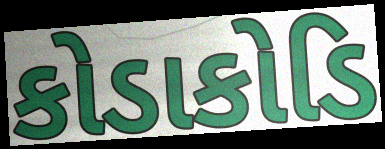
કોડાકોડિ